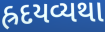
હ્રદયવ્યથા